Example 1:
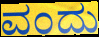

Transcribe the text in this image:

ವಂದು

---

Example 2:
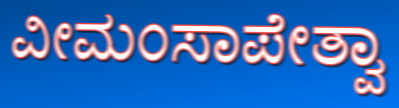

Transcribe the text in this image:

ವೀಮಂಸಾಪೇತ್ವಾ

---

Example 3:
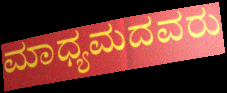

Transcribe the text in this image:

ಮಾಧ್ಯಮದವರು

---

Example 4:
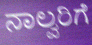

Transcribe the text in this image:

ನಾಲ್ವರಿಗೆ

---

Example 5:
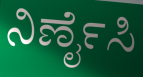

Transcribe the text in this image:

ನಿರ್ಣೈಸಿ